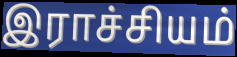
இராச்சியம்